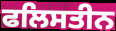
ਫਲਿਸਤੀਨ